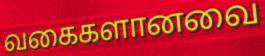
வகைகளானவை